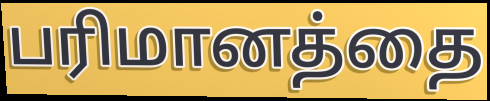
பரிமானத்தை